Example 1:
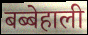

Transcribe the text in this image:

बब्बेहाली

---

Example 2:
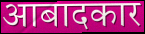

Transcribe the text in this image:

आबादकार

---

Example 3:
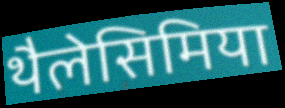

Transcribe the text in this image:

थैलेसिमिया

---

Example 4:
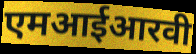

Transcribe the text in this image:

एमआईआरवी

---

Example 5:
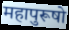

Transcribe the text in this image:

महापुरूषो